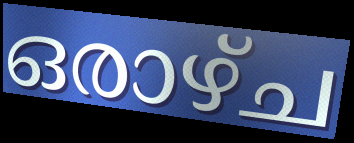
ഒരാഴ്ച